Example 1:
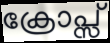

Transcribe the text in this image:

ക്രോപ്സ്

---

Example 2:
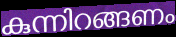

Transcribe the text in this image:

കുന്നിറങ്ങണം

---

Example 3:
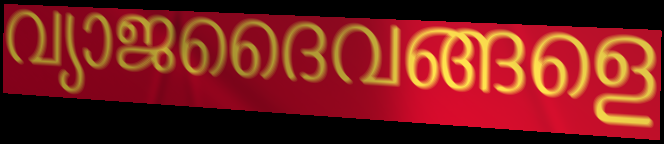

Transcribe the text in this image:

വ്യാജദൈവങ്ങളെ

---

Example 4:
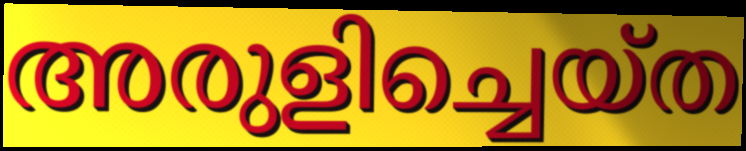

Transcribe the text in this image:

അരുളിച്ചെയ്ത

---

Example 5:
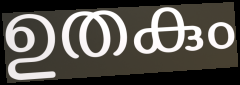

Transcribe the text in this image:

ഉതകും